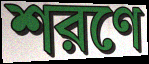
শরণে